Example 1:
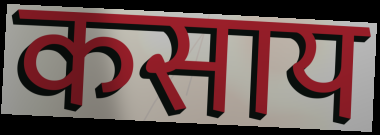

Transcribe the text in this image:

कसाय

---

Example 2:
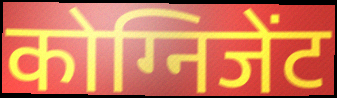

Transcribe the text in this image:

कोग्निजेंट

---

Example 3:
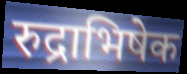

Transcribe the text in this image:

रुद्राभिषेक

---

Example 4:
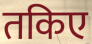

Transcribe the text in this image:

तकिए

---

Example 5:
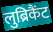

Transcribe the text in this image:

लुब्रिकैंट